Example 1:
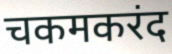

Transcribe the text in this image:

चकमकरंद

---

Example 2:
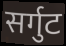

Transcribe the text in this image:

सर्गुट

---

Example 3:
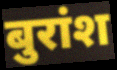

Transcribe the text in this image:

बुरांश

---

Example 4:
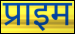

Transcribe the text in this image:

प्राइम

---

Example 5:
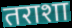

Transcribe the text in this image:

तराशा